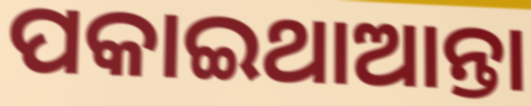
ପକାଇଥାଆନ୍ତା